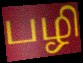
பழி